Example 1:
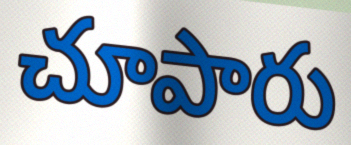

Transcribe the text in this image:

చూపారు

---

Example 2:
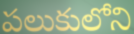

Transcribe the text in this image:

పలుకులోని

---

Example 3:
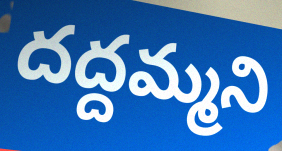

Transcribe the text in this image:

దద్దమ్మని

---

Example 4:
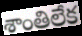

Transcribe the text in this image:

శాంతిలేక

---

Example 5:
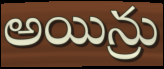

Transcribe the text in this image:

అయిన్రు